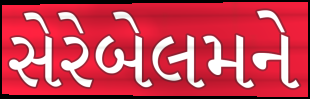
સેરેબેલમને